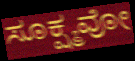
ಸೂಕ್ಷ್ಮವೋ